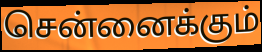
சென்னைக்கும்